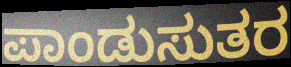
ಪಾಂಡುಸುತರ